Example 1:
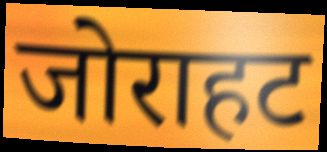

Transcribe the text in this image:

जोराहट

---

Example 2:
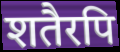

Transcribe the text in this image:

शतैरपि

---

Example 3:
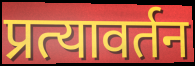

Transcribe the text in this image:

प्रत्‍यावर्तन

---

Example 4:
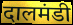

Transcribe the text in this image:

दालमंडी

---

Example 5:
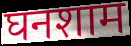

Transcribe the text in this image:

घनशाम